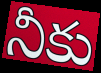
నీకు